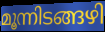
മൂന്നിടങ്ങഴി